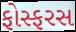
ફોસ્ફરસ